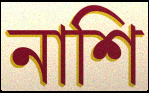
নাশি